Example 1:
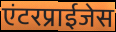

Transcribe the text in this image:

एंटरप्राईजेस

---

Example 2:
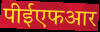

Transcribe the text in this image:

पीईएफआर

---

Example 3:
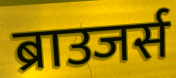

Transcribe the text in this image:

ब्राउजर्स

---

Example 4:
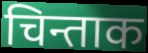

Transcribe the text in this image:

चिन्ताक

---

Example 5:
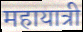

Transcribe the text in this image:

महायात्री